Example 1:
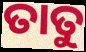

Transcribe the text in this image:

ତାତୁ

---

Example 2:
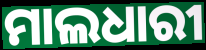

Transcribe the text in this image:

ମାଲଧାରୀ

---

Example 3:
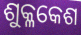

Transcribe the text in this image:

ଶୁକ୍ଳକେଶ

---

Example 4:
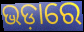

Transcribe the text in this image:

ଭଡ଼ାରେ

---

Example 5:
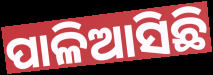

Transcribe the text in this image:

ପାଳିଆସିଛି